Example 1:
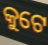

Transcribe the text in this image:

କୁଟେ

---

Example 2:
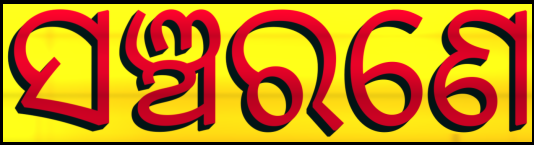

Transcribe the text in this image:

ସଞ୍ଚରଣେ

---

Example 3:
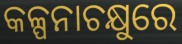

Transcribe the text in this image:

କଳ୍ପନାଚକ୍ଷୁରେ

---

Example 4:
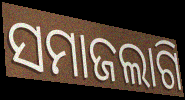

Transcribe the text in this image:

ସମାଜଲାଗି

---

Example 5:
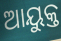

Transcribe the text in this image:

ଆୟୁକ୍ତ